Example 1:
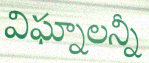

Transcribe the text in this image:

విఘ్నాలన్నీ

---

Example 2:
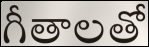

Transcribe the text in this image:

గీతాలతో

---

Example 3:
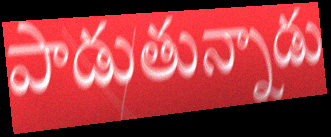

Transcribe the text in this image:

పాడుతున్నాడు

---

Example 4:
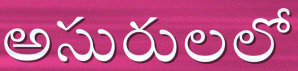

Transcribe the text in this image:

అసురులలో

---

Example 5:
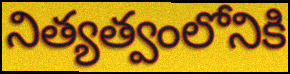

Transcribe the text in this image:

నిత్యత్వంలోనికి